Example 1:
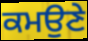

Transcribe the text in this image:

ਕਮਉਣੇ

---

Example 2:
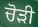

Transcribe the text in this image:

ਚੋੜੀ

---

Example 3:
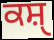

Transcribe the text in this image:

ਕਸ਼ੑ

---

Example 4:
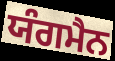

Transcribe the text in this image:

ਯੰਗਮੈਨ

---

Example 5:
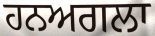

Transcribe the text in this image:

ਹਨਅਗਲਾ